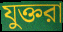
যুক্তরা